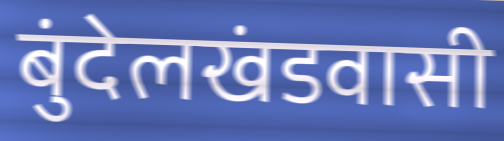
बुंदेलखंडवासी